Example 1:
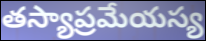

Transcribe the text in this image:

తస్యాప్రమేయస్య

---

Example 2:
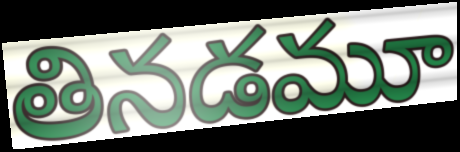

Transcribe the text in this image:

తినడమూ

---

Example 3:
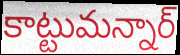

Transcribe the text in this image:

కాట్టుమన్నార్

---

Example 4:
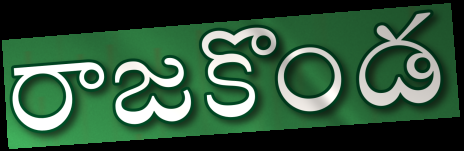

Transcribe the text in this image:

రాజకొండ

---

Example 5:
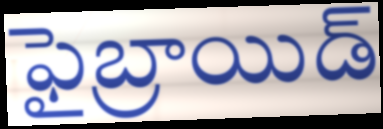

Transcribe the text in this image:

ఫైబ్రాయిడ్